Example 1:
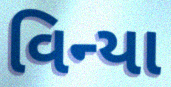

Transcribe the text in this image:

વિન્યા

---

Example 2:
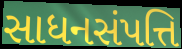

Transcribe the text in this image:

સાધનસંપત્તિ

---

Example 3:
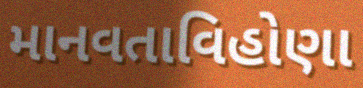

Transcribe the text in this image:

માનવતાવિહોણા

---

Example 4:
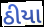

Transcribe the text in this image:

ઠીયા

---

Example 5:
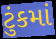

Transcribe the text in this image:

ટુંકમાં